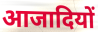
आजादियों